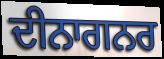
ਦੀਨਾਗਨਰ